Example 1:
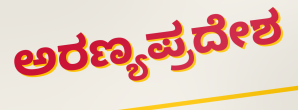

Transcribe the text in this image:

ಅರಣ್ಯಪ್ರದೇಶ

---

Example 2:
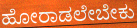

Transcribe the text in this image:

ಹೋರಾಡಲೇಬೇಕು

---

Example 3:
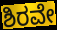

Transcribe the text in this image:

ಶಿರವೇ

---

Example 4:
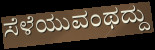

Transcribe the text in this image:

ಸೆಳೆಯುವಂಥದ್ದು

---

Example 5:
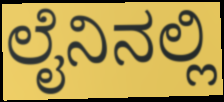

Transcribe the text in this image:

ಲೈನಿನಲ್ಲಿ